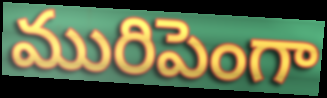
మురిపెంగా